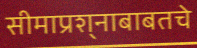
सीमाप्रश्नाबाबतचे